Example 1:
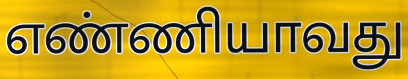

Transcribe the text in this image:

எண்ணியாவது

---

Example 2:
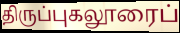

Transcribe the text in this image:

திருப்புகலூரைப்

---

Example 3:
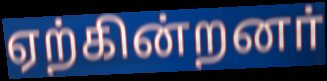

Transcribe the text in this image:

ஏற்கின்றனர்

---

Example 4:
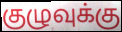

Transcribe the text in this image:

குழுவுக்கு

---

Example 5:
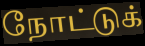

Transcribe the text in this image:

நோட்டுக்